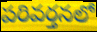
పరివర్తనలో